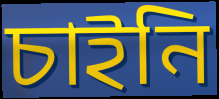
চাইনি